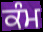
ਕੰਮ